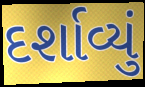
દર્શાવ્યું